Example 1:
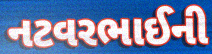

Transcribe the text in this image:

નટવરભાઈની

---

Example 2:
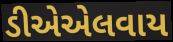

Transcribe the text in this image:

ડીએએલવાય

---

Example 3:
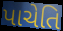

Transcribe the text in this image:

પાચેતિ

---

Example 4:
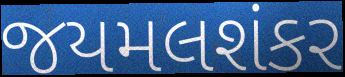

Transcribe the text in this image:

જયમલશંકર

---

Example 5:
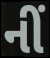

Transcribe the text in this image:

નીં